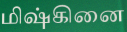
மிஷ்கினை